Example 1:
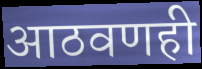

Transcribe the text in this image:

आठवणही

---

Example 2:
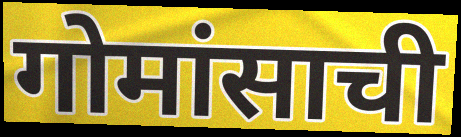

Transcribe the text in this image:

गोमांसाची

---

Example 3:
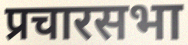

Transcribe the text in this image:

प्रचारसभा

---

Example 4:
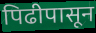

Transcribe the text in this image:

पिढीपासून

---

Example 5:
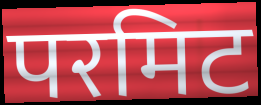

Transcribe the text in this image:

परमिट